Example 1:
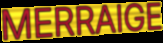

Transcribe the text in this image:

MERRAIGE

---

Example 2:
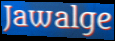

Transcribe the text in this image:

Jawalge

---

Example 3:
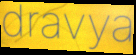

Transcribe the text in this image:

dravya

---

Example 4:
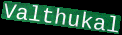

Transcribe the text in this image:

Valthukal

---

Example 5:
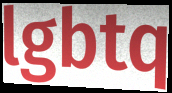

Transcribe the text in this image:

lgbtq